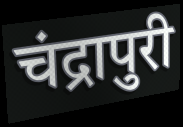
चंद्रापुरी